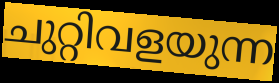
ചുറ്റിവളയുന്ന